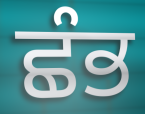
ਛੰਭ